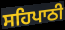
ਸਹਿਪਾਠੀ